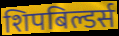
शिपबिल्डर्स